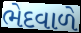
ભેદવાળે